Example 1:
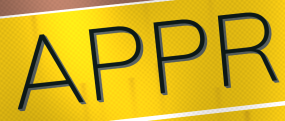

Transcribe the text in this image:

APPR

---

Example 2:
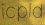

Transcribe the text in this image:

icpld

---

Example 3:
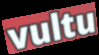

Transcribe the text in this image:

vultu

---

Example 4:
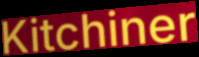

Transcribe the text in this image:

Kitchiner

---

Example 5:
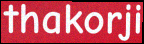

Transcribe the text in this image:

thakorji